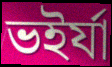
ভইর্যা